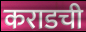
कराडची